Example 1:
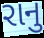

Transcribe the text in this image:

રાનુ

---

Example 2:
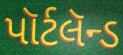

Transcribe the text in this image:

પૉર્ટલૅન્ડ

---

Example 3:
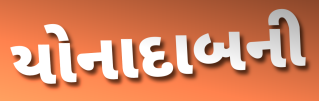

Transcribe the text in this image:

યોનાદાબની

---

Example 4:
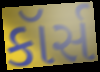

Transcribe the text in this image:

કૉર્સ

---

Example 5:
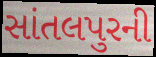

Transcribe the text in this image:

સાંતલપુરની